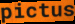
pictus